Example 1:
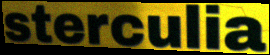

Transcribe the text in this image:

sterculia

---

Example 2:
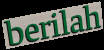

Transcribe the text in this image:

berilah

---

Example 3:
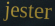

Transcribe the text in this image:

jester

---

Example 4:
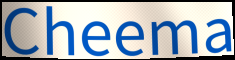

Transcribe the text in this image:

Cheema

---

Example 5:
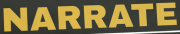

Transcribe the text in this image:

NARRATE